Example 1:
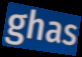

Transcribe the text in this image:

ghas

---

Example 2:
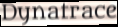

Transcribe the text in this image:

Dynatrace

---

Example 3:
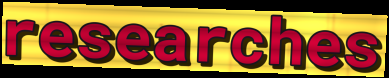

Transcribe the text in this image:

researches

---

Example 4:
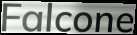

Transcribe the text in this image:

Falcone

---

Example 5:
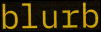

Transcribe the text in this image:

blurb